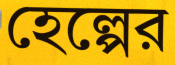
হেল্পের